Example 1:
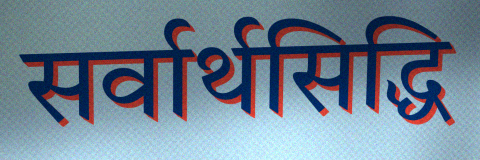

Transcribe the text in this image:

सर्वार्थसिद्धि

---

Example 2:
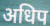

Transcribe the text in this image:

अधिप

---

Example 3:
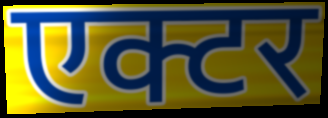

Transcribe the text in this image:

एक्टर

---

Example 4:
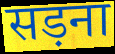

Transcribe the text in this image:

सड़ना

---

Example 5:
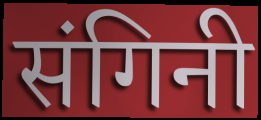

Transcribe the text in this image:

संगिनी